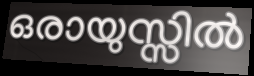
ഒരായുസ്സിൽ